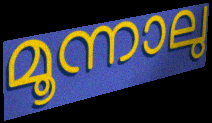
മൂന്നാലു